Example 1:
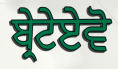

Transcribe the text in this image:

ਬ੍ਰੇਟੇਏਵੋ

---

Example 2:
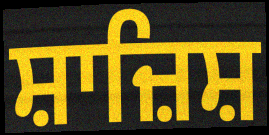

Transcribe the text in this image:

ਸ਼ਾਜ਼ਿਸ਼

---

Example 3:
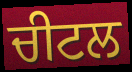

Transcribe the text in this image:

ਚੀਟਲ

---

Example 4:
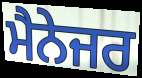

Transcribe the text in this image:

ਮੈਨੇਜਰ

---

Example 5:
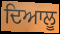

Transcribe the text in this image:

ਦਿਆਲੂ